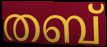
തബ്